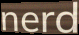
nerd